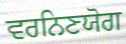
ਵਰਨਿਣਯੋਗ